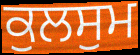
ਕੁਲਸੁਮ